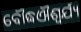
ବୌଦ୍ଧଐଶ୍ୱର୍ଯ୍ୟ